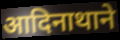
आदिनाथाने